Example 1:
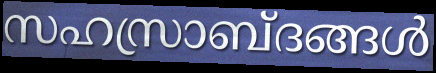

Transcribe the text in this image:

സഹസ്രാബ്ദങ്ങൾ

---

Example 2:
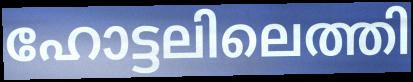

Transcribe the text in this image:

ഹോട്ടലിലെത്തി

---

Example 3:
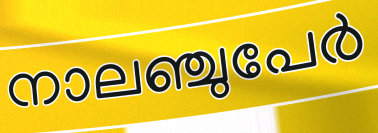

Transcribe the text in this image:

നാലഞ്ചുപേർ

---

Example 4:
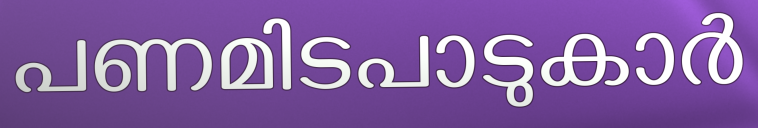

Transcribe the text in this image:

പണമിടപാടുകാർ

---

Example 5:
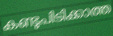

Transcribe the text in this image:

കണ്ടുപിടിക്കാത്ത